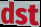
dst